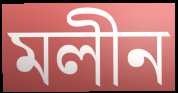
মলীন